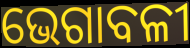
ଭେଗାବଳୀ